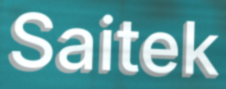
Saitek